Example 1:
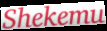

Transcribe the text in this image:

Shekemu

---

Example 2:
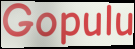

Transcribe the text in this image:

Gopulu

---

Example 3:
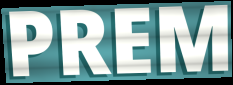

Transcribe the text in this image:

PREM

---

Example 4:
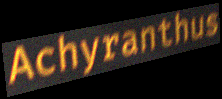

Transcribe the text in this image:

Achyranthus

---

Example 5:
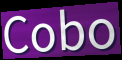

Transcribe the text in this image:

Cobo